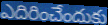
ఎదిరించేందుకు